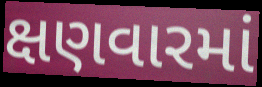
ક્ષણવારમાં